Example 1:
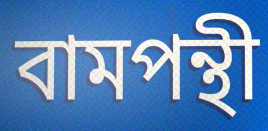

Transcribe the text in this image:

বামপন্থী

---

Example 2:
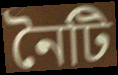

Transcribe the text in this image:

নৈটি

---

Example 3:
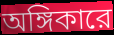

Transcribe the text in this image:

অঙ্গিকারে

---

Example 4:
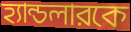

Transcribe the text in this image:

হ্যান্ডলারকে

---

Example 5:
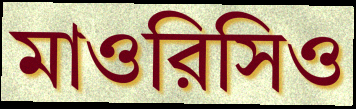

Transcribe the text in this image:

মাওরিসিও